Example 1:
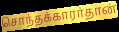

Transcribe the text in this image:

சொந்தக்காரர்தான்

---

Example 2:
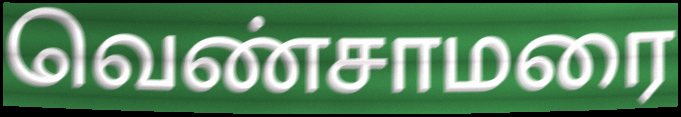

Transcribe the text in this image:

வெண்சாமரை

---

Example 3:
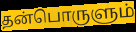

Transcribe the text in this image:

தன்பொருளும்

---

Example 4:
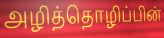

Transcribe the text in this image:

அழித்தொழிப்பின்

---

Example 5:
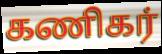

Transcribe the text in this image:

கணிகர்